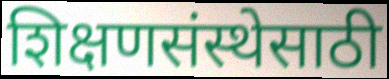
शिक्षणसंस्थेसाठी